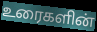
உரைகளின்